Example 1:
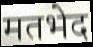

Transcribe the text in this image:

मतभेद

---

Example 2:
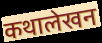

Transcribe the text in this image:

कथालेखन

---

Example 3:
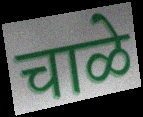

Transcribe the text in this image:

चाळे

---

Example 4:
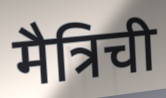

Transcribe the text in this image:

मैत्रिची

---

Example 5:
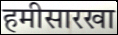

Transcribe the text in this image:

हमीसारखा